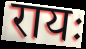
रायः